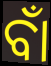
ବାଁ